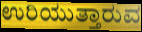
ಉರಿಯುತ್ತಾರುವ